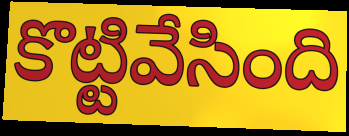
కొట్టివేసింది